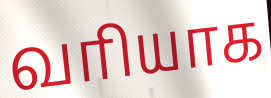
வரியாக